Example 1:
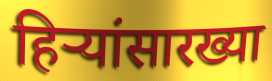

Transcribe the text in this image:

हिऱ्यांसारख्या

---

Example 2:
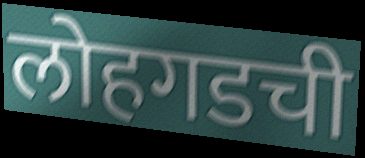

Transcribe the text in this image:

लोहगडची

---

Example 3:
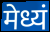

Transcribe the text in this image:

मेध्यं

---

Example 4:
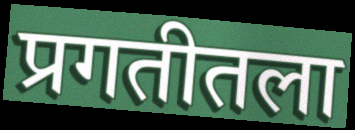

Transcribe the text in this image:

प्रगतीतला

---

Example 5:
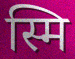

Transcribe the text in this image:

स्मि